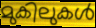
മുകിലുകൾ